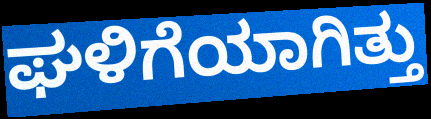
ಘಳಿಗೆಯಾಗಿತ್ತು